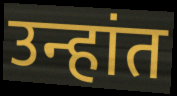
उन्हांत